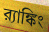
র‍্যাঙ্কিং